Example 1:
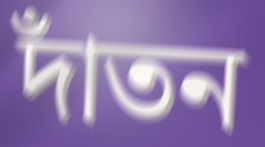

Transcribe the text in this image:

দাঁতন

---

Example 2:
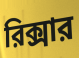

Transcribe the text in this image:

রিক্সার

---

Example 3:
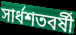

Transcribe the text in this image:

সার্ধশতবর্ষী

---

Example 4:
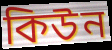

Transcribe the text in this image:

কিউন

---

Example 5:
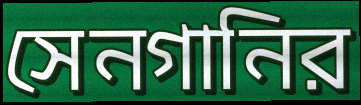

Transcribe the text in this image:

সেনগানির